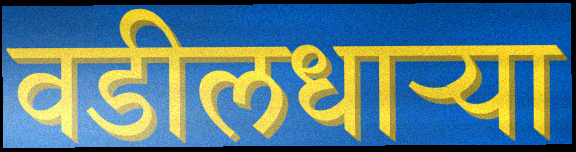
वडीलधाऱ्या